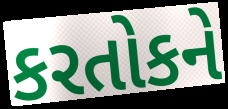
કરતોકને